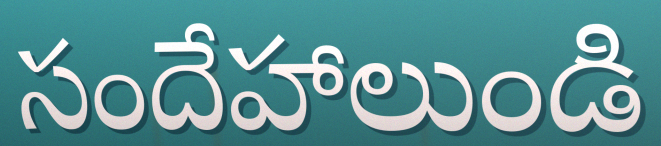
సందేహాలుండి